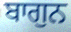
ਬਾਗੁਨ